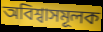
অবিশ্বাসমূলক